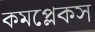
কমপ্লেকস